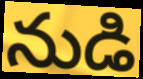
నుడి